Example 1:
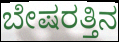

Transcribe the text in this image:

ಬೇಷರತ್ತಿನ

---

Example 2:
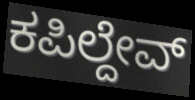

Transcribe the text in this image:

ಕಪಿಲ್ದೇವ್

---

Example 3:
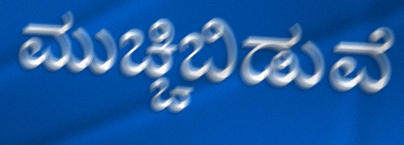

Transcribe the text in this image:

ಮುಚ್ಚಿಬಿಡುವೆ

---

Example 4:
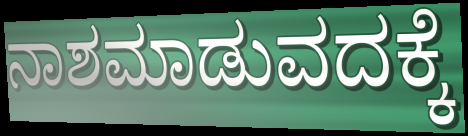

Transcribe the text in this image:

ನಾಶಮಾಡುವದಕ್ಕೆ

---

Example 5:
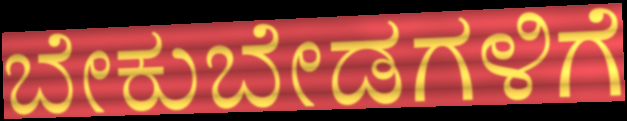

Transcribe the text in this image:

ಬೇಕುಬೇಡಗಳಿಗೆ